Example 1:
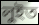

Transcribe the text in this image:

লুইত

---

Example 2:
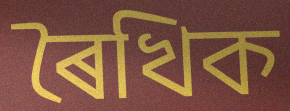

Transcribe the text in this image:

ৰৈখিক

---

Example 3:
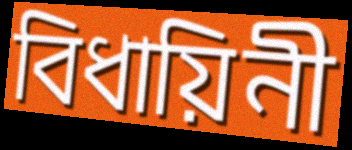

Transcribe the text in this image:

বিধায়িনী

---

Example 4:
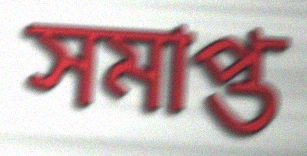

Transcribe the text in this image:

সমাপ্ত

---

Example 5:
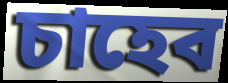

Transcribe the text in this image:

চাহেব